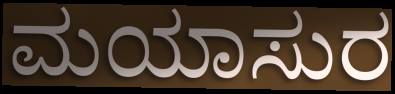
ಮಯಾಸುರ